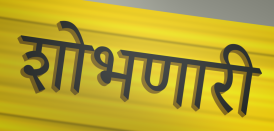
शोभणारी